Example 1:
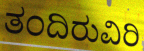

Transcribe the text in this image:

ತಂದಿರುವಿರಿ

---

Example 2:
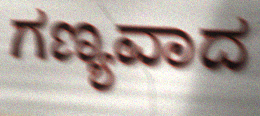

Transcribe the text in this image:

ಗಣ್ಯವಾದ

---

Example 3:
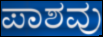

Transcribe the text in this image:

ಪಾಶವು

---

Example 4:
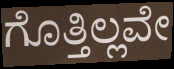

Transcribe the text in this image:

ಗೊತ್ತಿಲ್ಲವೇ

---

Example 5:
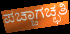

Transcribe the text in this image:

ಪಚ್ಚಾಗಚ್ಛತಿ